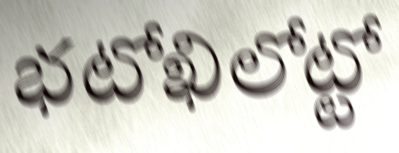
భటోఖిలోట్టో